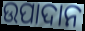
ଉପାଦାନ